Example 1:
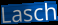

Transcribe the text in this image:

Lasch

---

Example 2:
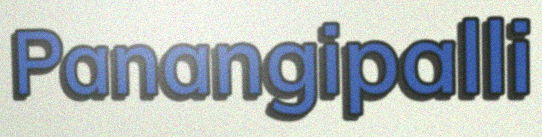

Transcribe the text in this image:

Panangipalli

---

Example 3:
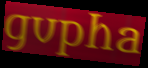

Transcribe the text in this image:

gupha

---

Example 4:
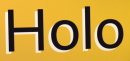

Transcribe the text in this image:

Holo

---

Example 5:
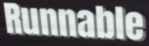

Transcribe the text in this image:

Runnable